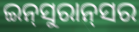
ଇନ୍‍ସୁରାନ୍‍ସର